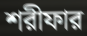
শরীফার